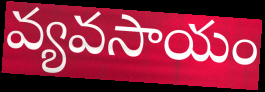
వ్యవసాయం